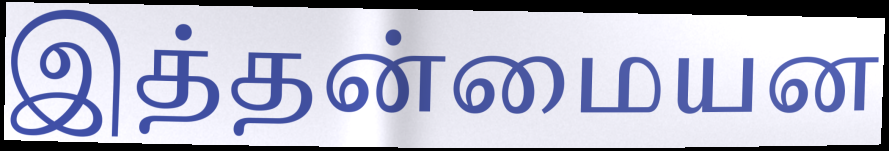
இத்தன்மையன